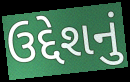
ઉદ્દેશનું